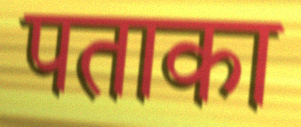
पताका